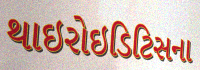
થાઇરોઇડિટિસના